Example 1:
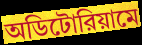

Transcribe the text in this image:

অডিটোরিয়ামে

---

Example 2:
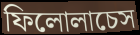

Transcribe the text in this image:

ফিলোলাচেস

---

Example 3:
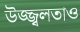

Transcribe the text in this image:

উজ্জ্বলতাও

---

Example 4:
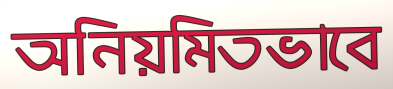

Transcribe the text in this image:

অনিয়মিতভাবে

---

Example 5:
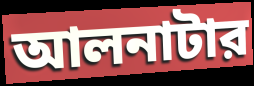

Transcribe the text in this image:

আলনাটার